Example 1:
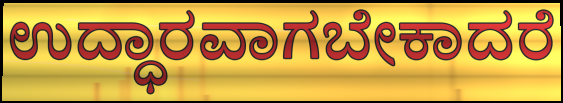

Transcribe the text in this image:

ಉದ್ಧಾರವಾಗಬೇಕಾದರೆ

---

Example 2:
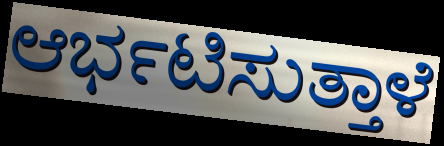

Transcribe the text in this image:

ಆರ್ಭಟಿಸುತ್ತಾಳೆ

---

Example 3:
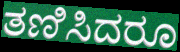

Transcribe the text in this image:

ತಣಿಸಿದರೂ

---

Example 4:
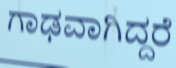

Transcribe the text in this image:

ಗಾಢವಾಗಿದ್ದರೆ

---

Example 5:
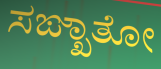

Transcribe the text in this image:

ಸಙ್ಖಾತೋ